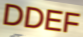
DDEF